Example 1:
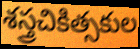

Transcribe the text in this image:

శస్త్రచికిత్సకుల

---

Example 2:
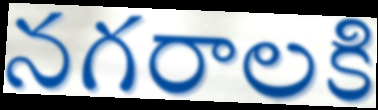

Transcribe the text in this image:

నగరాలకి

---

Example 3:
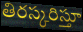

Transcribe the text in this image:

తిరస్కరిస్తూ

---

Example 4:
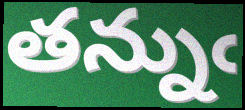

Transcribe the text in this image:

తన్నుఁ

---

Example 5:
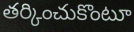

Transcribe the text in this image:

తర్కించుకొంటూ